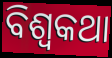
ବିଶ୍ୱକଥା